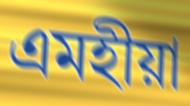
এমহীয়া